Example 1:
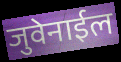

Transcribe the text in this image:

जुवेनाईल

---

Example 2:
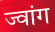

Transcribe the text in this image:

ज्वांग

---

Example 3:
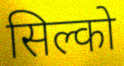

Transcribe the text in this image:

सिल्को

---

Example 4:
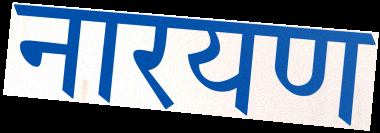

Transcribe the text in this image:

नारयण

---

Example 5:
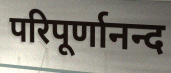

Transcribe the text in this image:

परिपूर्णानन्द